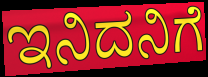
ಇನಿದನಿಗೆ